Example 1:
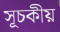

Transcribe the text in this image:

সূচকীয়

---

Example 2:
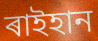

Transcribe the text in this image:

ৰাইহান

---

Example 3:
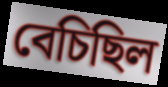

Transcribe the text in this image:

বেচিছিল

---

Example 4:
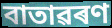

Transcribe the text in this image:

বাতাৱৰণ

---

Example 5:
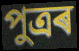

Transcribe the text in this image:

পুত্ৰৰ